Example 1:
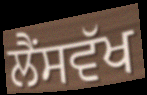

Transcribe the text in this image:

ਲੈਂਸਵੱਖ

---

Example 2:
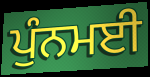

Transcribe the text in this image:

ਪੁੰਨਮਈ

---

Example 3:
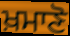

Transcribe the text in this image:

ਖ਼ਮਾਣੋ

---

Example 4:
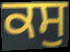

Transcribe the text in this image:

ਕਸੁ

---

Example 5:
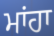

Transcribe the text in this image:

ਮਾਂਹਾ